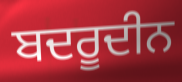
ਬਦਰੂਦੀਨ